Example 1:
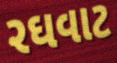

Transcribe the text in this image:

રઘવાટ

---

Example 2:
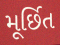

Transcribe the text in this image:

મૂર્છિત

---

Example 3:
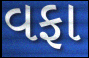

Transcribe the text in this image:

વફા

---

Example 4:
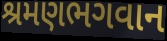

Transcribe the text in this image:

શ્રમણભગવાન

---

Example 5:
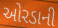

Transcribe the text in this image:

ઓરડાની